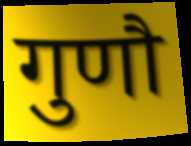
गुणौ